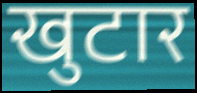
खुटार